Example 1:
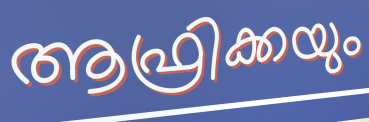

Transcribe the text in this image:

ആഫ്രിക്കയും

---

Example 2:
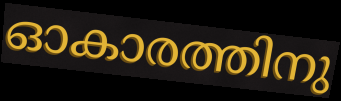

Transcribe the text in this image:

ഓകാരത്തിനു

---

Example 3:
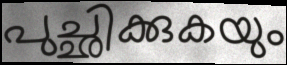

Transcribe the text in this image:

പുച്ഛിക്കുകയും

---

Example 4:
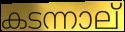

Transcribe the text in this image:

കടന്നാല്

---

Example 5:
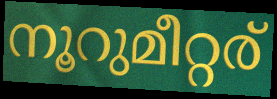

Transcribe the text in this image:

നൂറുമീറ്റര്